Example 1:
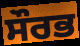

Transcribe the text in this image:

ਸੌਰਭ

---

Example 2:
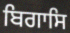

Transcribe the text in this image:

ਬਿਗਾਸਿ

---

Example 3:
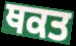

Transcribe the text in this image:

ਥਕਤ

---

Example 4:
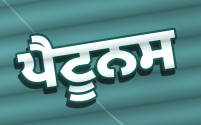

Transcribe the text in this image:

ਪੈਟੂਨਸ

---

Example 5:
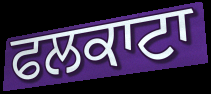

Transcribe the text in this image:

ਫਲਕਾਟਾ